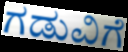
ಗಡುವಿಗೆ